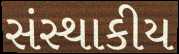
સંસ્થાકીય